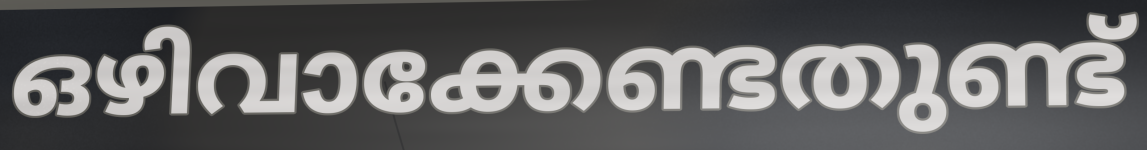
ഒഴിവാക്കേണ്ടതുണ്ട്